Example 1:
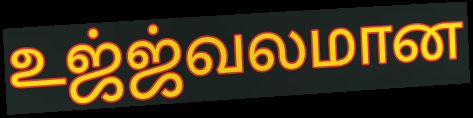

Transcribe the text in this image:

உஜ்ஜ்வலமான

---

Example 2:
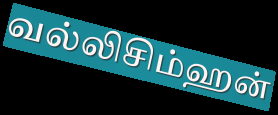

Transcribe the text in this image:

வல்லிசிம்ஹன்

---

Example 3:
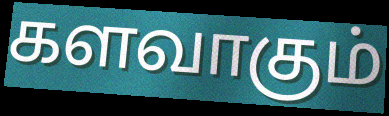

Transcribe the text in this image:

களவாகும்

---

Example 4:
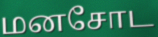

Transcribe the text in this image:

மனசோட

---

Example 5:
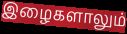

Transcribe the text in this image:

இழைகளாலும்